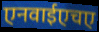
एनवाईएचए